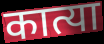
कात्या